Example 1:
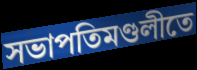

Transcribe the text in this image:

সভাপতিমণ্ডলীতে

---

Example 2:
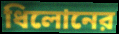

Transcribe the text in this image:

ধিলোনের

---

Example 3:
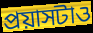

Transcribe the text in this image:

প্রয়াসটাও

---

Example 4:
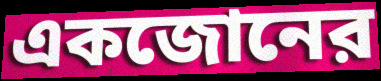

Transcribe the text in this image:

একজোনের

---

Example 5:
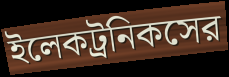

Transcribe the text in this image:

ইলেকট্রনিকসের